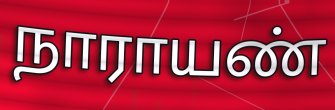
நாராயண்